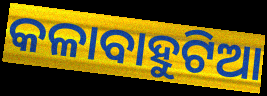
କଳାବାହୁଟିଆ